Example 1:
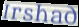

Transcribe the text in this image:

Irshad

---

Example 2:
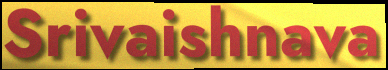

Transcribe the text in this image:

Srivaishnava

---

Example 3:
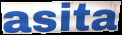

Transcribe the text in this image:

asita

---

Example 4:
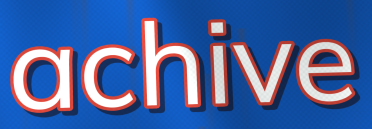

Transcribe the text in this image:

achive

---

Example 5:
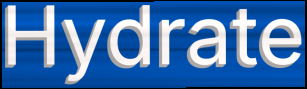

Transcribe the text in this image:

Hydrate